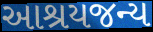
આશ્રયજન્ય